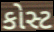
કોસ્ટ